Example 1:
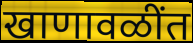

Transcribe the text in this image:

खाणावळींत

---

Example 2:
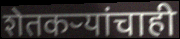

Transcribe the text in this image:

शेतकऱ्यांचाही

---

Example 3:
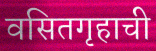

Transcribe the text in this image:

वसितगृहाची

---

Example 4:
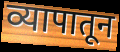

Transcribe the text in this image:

व्यापातून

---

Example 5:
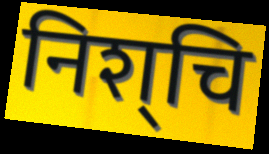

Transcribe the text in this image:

निश्चि